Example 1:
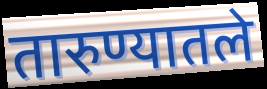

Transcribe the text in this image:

तारुण्यातले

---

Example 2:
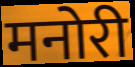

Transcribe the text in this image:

मनोरी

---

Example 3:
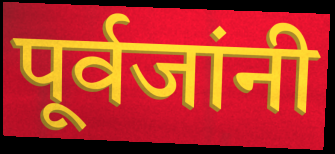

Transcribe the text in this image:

पूर्वजांनी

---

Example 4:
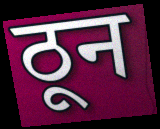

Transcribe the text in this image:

ठून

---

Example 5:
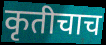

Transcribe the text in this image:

कृतीचाच